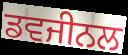
ਡਵਜੀਨਲ